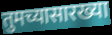
तुमच्यासारख्या